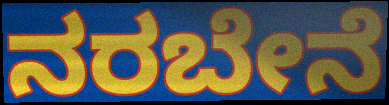
ನರಬೇನೆ